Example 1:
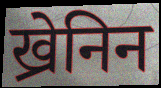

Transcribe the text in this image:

ख्रेनिन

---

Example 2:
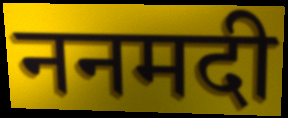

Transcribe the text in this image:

ननमदी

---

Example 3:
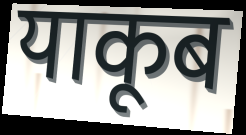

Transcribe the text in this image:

याकूब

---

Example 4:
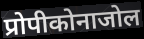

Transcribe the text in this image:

प्रोपीकोनाजोल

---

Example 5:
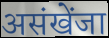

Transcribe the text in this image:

असंखेंजा